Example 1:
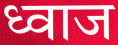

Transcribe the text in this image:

ध्वाज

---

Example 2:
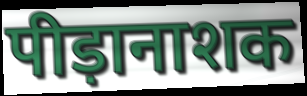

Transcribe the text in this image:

पीड़ानाशक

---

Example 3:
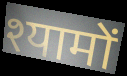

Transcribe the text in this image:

श्यामों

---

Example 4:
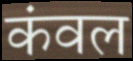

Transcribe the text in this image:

कंवल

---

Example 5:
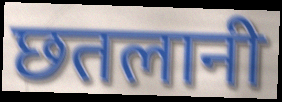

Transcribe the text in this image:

छतलानी